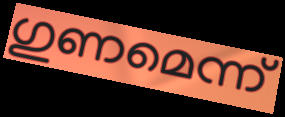
ഗുണമെന്ന്